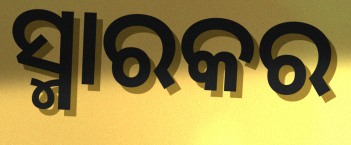
ସ୍ମାରକର